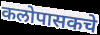
कलोपासकचे